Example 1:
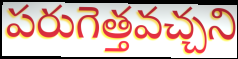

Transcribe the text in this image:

పరుగెత్తవచ్చని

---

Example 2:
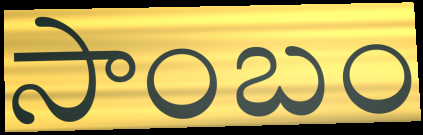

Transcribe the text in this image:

సాంబం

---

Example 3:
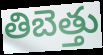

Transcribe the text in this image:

తిబెత్తు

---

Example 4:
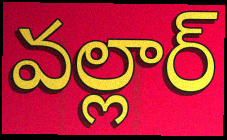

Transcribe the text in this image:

వల్లార్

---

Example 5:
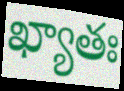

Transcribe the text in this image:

ఖ్యాతః